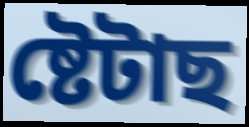
ষ্টেটাছ